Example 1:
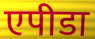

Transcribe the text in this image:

एपीडा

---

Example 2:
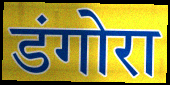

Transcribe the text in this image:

डंगोरा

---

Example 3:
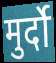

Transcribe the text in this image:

मुर्दो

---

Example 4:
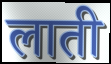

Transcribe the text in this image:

लाती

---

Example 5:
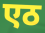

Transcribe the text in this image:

एठ